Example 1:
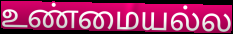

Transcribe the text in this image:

உண்மையல்ல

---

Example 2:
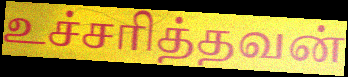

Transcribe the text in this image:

உச்சரித்தவன்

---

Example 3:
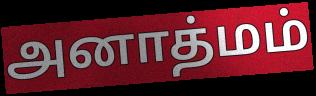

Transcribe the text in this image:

அனாத்மம்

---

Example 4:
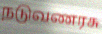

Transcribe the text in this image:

நடுவணரசு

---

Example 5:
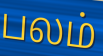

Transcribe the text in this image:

பலம்